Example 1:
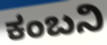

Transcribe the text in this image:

ಕಂಬನಿ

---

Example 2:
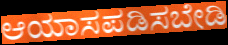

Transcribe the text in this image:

ಆಯಾಸಪಡಿಸಬೇಡಿ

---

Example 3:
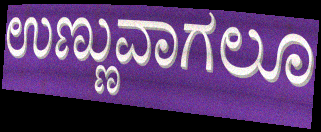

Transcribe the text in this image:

ಉಣ್ಣುವಾಗಲೂ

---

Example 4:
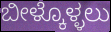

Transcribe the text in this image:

ಬೀಳ್ಕೊಳ್ಳಲು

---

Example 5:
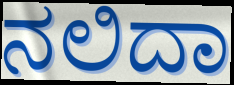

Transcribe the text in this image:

ನಲಿದಾ